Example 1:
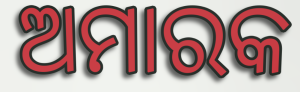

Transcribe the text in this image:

ଅମାରକ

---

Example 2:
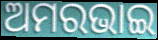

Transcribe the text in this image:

ଅମରଭାଇ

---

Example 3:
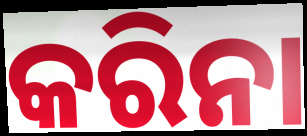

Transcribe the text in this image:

କରିନା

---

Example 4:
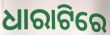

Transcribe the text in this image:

ଧାରାଟିରେ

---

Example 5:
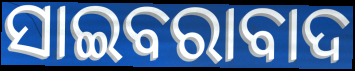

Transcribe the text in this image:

ସାଇବରାବାଦ